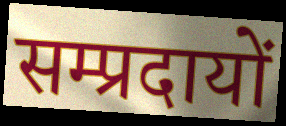
सम्प्रदायों